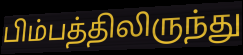
பிம்பத்திலிருந்து